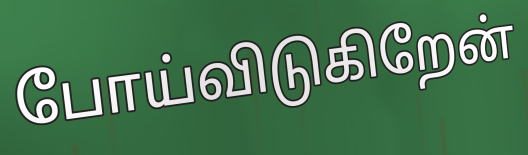
போய்விடுகிறேன்